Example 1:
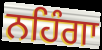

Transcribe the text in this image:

ਨਹਿੰਗਾ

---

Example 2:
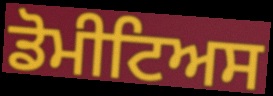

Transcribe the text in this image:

ਡੋਮੀਟਿਅਸ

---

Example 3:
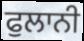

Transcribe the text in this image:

ਫੁਲਾਨੀ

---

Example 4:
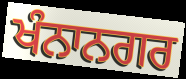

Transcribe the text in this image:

ਖੰਨਾਨਗਰ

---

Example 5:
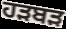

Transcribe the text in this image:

ਹੜਬੜ